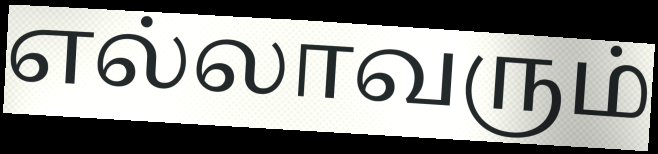
எல்லாவரும்